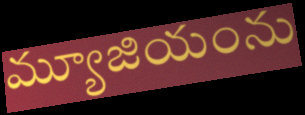
మ్యూజియంను